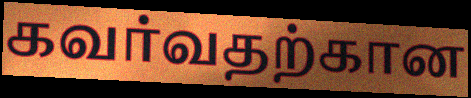
கவர்வதற்கான